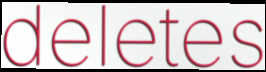
deletes